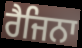
ਰੈਜਿਨਾ